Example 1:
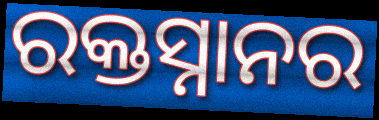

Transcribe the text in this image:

ରକ୍ତସ୍ନାନର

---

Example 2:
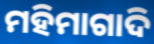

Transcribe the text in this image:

ମହିମାଗାଦି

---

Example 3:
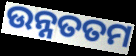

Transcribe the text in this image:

ଉନ୍ନତତମ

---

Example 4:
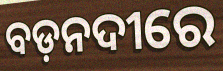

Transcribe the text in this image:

ବଡ଼ନଦୀରେ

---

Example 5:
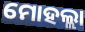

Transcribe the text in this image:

ମୋହଲ୍ଲା